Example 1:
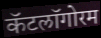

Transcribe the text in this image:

कॅटलॉगोरम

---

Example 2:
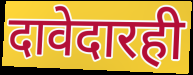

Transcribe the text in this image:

दावेदारही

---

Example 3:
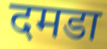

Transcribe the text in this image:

दमडा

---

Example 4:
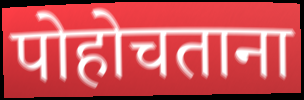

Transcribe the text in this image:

पोहोचताना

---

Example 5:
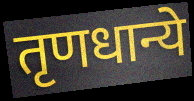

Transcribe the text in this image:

तृणधान्ये